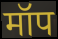
मॉप